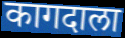
कागदाला